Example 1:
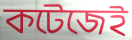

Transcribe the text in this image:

কটেজেই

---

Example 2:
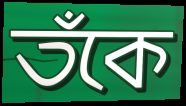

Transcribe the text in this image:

তঁকে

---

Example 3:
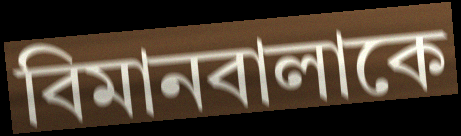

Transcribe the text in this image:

বিমানবালাকে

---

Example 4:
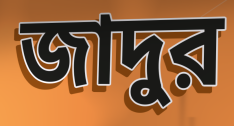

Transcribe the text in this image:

জাদুর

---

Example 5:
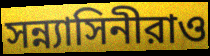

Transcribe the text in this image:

সন্ন্যাসিনীরাও